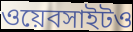
ওয়েবসাইটও